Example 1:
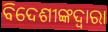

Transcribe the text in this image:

ବିଦେଶୀଙ୍କଦ୍ୱାରା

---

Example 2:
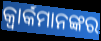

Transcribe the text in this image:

କ୍ୱାର୍କମାନଙ୍କର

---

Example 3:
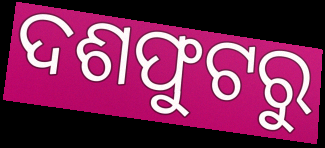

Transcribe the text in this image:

ଦଶଫୁଟରୁ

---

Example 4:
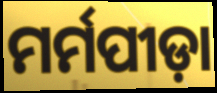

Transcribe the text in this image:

ମର୍ମପୀଡ଼ା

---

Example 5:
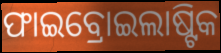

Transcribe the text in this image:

ଫାଇବ୍ରୋଇଲାଷ୍ଟିକ